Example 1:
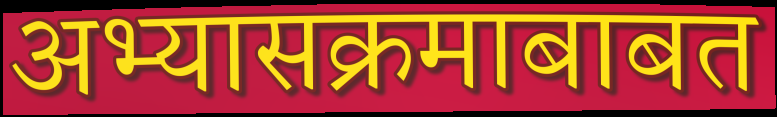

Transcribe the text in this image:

अभ्यासक्रमाबाबत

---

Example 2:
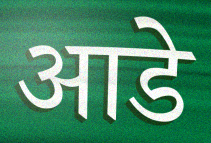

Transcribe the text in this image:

आडे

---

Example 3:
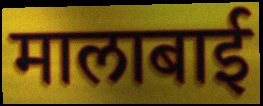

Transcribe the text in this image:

मालाबाई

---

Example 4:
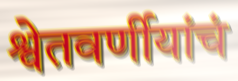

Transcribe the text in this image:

श्वेतवर्णीयांचं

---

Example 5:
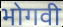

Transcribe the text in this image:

भोगवी